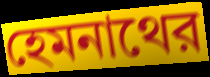
হেমনাথের